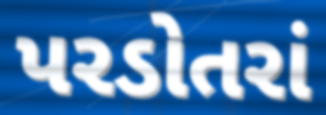
પરડોતરાં